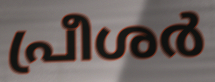
പ്രീശർ